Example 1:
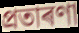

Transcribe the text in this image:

প্ৰতাৰণা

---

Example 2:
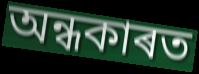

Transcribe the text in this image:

অন্ধকাৰত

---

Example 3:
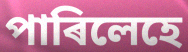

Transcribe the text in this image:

পাৰিলেহে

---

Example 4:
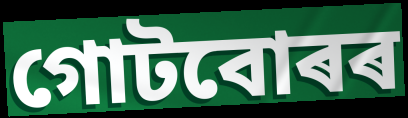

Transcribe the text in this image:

গোটবোৰৰ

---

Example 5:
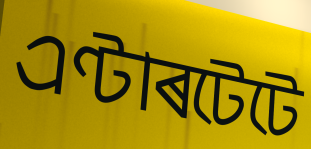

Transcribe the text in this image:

এণ্টাৰটেটে